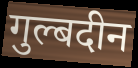
गुल्बदीन